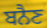
ਬਨੈਣ